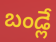
బండ్లే